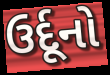
ઉર્દૂનો